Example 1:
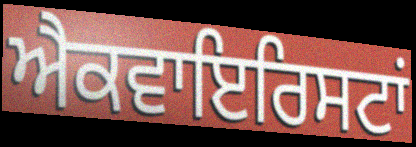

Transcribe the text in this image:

ਐਕਵਾਇਰਿਸਟਾਂ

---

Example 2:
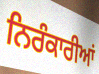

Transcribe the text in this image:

ਨਿਰੰਕਾਰੀਆਂ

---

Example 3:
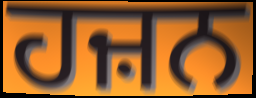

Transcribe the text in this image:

ਹਜ਼ਨ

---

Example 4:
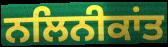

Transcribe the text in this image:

ਨਲਿਨੀਕਾਂਤ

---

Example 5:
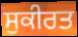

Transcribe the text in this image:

ਸੁਕੀਰਤ